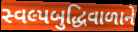
સ્વલ્પબુદ્ધિવાળાને